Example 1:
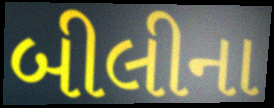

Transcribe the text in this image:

બીલીના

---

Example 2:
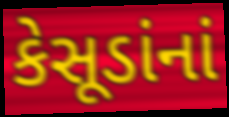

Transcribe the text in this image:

કેસૂડાંનાં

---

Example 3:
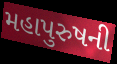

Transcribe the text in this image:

મહાપુરુષની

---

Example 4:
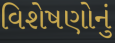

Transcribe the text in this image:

વિશેષણોનું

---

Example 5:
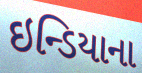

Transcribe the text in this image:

ઇન્ડિયાના